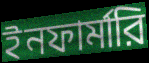
ইনফার্মারি